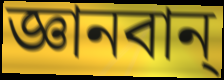
জ্ঞানবান্